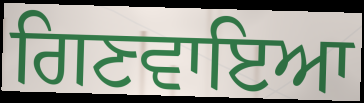
ਗਿਣਵਾਇਆ